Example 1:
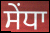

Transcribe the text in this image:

ਸੇਂਧਾ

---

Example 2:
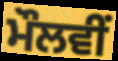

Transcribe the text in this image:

ਮੌਲਵੀਂ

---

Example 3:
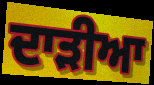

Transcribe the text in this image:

ਦਾੜੀਆ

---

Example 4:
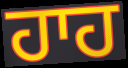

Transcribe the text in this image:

ਹਾਹ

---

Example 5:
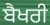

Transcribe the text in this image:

ਬੈਖਰੀ